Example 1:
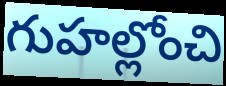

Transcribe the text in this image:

గుహల్లోంచి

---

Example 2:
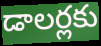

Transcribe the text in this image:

డాలర్లకు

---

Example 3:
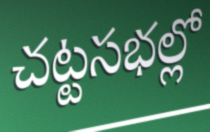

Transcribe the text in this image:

చట్టసభల్లో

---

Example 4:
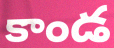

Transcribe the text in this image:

కాండ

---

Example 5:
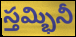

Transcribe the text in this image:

స్తమ్భినీ